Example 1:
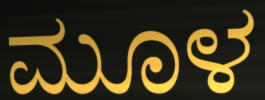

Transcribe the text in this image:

ಮೂಳ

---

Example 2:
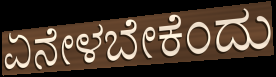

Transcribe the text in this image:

ಏನೇಳಬೇಕೆಂದು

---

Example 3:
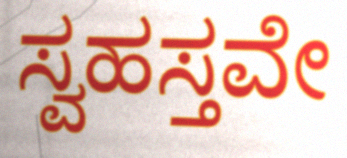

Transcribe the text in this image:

ಸ್ವಹಸ್ತವೇ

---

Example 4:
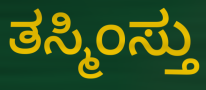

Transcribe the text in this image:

ತಸ್ಮಿಂಸ್ತು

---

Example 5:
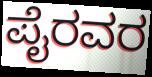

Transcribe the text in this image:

ಪೈರವರ